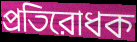
প্রতিরোধক